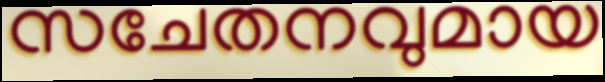
സചേതനവുമായ